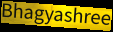
Bhagyashree